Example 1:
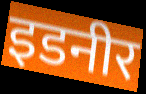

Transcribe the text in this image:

इडनीर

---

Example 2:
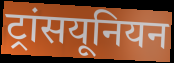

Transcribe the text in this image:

ट्रांसयूनियन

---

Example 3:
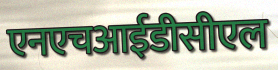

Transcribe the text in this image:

एनएचआईडीसीएल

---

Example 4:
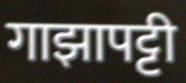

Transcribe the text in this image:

गाझापट्टी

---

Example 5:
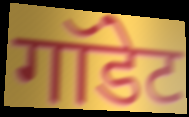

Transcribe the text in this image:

गॉडेट